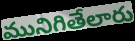
మునిగితేలారు